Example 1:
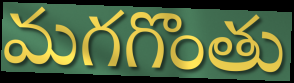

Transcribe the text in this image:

మగగొంతు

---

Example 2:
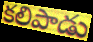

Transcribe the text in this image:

కలిపాడు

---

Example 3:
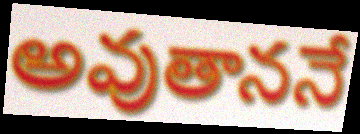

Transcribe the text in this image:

అవుతాననే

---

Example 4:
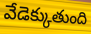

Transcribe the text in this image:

వేడెక్కుతుంది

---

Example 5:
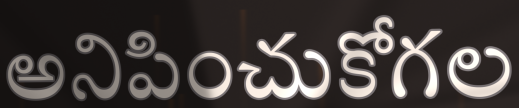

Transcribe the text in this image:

అనిపించుకోగల